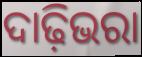
ଦାଢ଼ିଭରା